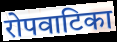
रोपवाटिका